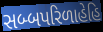
સબ્બપરિળાહેહિ